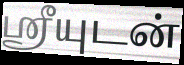
ஸ்ரீயுடன்